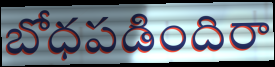
బోధపడిందిరా